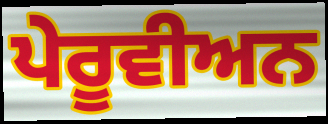
ਪੇਰੂਵੀਅਨ